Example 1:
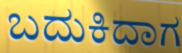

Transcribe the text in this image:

ಬದುಕಿದಾಗ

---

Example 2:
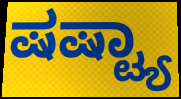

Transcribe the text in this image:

ಷಷ್ಟ್ಯಾ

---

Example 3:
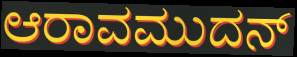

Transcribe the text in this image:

ಆರಾವಮುದನ್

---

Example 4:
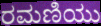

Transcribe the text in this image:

ರಮಣಿಯು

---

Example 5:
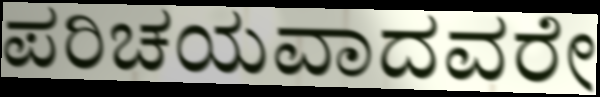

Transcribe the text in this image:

ಪರಿಚಯವಾದವರೇ